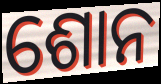
ଶୋନ